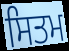
ਸਿਤਮ